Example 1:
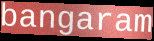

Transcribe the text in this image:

bangaram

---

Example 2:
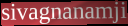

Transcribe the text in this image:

sivagnanamji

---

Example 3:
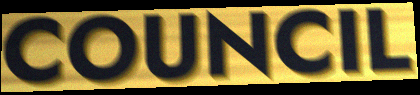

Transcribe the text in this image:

COUNCIL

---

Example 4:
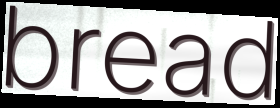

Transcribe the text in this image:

bread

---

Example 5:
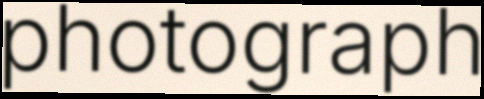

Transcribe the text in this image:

photograph